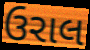
ઉરાલ